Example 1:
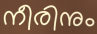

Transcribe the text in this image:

നീരിനും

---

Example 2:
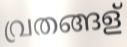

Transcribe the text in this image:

വ്രതങ്ങള്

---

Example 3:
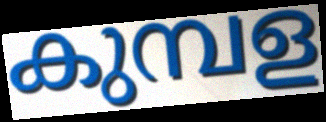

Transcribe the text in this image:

കുമ്പള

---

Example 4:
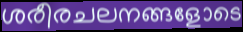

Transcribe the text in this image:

ശരീരചലനങ്ങളോടെ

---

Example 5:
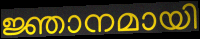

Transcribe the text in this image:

ജ്ഞാനമായി